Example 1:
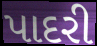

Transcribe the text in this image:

પાદરી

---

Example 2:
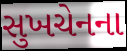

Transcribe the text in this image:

સુખચેનના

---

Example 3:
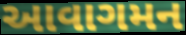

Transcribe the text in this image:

આવાગમન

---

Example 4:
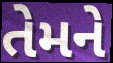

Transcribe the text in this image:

તેમને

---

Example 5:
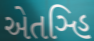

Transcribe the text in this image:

એતઞ્હિ